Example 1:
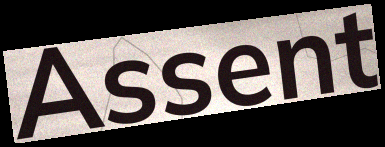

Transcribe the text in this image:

Assent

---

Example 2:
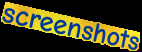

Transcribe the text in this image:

screenshots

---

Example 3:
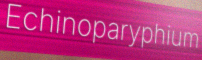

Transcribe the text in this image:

Echinoparyphium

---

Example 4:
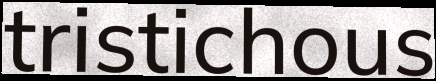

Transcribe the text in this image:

tristichous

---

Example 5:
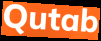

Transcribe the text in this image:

Qutab